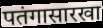
पतंगासारखा